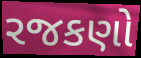
રજકણો